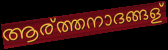
ആര്ത്തനാദങ്ങള്